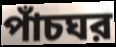
পাঁচঘর